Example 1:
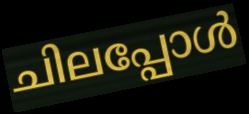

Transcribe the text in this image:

ചിലപ്പോൾ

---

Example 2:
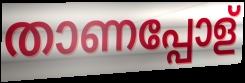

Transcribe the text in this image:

താണപ്പോള്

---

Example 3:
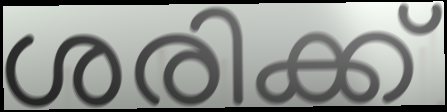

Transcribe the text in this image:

ശരിക്ക്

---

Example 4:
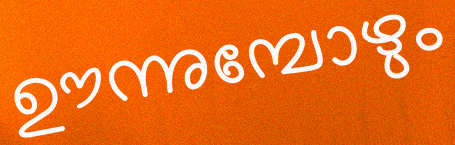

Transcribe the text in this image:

ഊന്നുമ്പോഴും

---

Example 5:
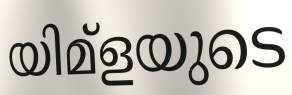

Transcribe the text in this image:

യിമ്ളയുടെ